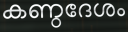
കണ്ഠദേശം